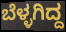
ಬೆಳ್ಳಗಿದ್ದ